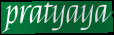
pratyaya